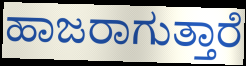
ಹಾಜರಾಗುತ್ತಾರೆ